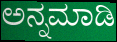
ಅನ್ನಮಾಡಿ